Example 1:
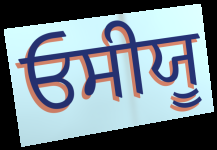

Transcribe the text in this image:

ਓਸੀਯੂ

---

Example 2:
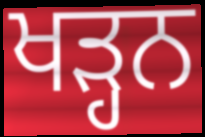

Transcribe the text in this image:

ਖੜ੍ਹਨ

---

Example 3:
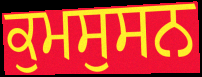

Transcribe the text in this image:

ਕੁਮਸੁਸਨ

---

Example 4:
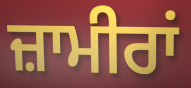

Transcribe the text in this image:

ਜ਼ਾਮੀਰਾਂ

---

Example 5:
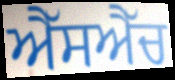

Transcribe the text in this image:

ਐੱਸਐੱਚ